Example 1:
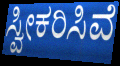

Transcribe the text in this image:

ಸ್ವೀಕರಿಸಿವೆ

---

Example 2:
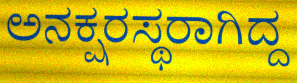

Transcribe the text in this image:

ಅನಕ್ಷರಸ್ಥರಾಗಿದ್ದ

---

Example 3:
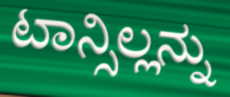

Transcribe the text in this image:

ಟಾನ್ಸಿಲ್ಲನ್ನು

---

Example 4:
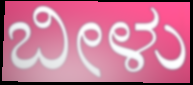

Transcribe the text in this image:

ಬೀಳು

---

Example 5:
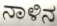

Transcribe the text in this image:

ನಾಳಿನ